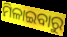
ମିଳାଇବାରୁ